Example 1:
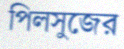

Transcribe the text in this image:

পিলসুজের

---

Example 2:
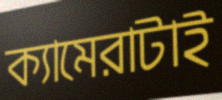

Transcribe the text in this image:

ক্যামেরাটাই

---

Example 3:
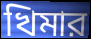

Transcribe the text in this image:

খিমার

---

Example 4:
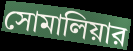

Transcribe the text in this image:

সোমালিয়ার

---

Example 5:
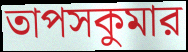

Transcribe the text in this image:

তাপসকুমার